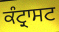
ਕੰਟ੍ਰਾਸਟ